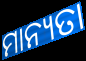
ମାନ୍ୟତା